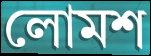
লোমশ